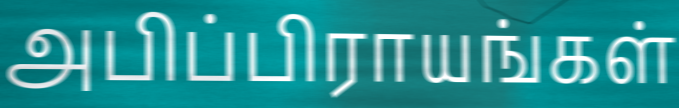
அபிப்பிராயங்கள்